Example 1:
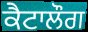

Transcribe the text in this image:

ਕੈਟਾਲੌਗ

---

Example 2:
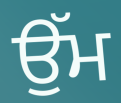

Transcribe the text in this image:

ਉੱਮ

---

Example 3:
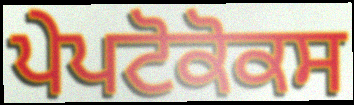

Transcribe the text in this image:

ਪੇਪਟੋਕੋਕਸ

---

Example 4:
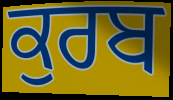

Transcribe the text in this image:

ਕੁਰਬ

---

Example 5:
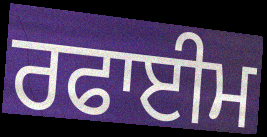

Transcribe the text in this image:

ਰਫਾਈਮ